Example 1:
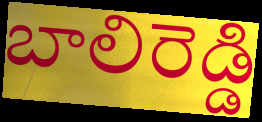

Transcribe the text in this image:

బాలిరెడ్డి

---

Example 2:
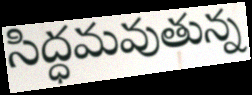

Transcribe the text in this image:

సిద్ధమవుతున్న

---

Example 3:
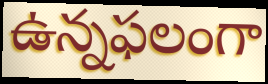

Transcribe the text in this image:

ఉన్నఫలంగా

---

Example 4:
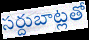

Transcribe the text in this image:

సర్దుబాట్లతో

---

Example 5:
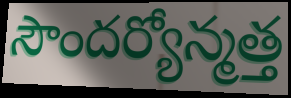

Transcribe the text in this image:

సౌందర్యోన్మత్త